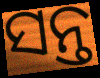
ସନ୍ତ